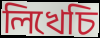
লিখেচি